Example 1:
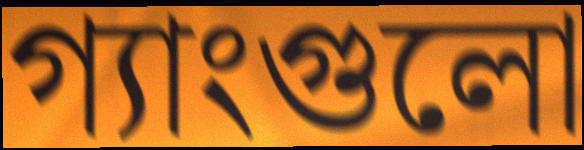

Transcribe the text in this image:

গ্যাংগুলো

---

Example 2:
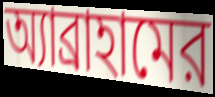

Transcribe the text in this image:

অ্যাব্রাহামের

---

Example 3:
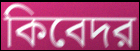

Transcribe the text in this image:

কিবেদর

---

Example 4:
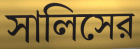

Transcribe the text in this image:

সালিসের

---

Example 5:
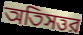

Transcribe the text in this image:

অতিসত্তর